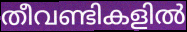
തീവണ്ടികളിൽ